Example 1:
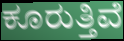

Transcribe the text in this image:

ಕೂರುತ್ತಿವೆ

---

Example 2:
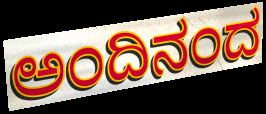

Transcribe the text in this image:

ಅಂದಿನಂದ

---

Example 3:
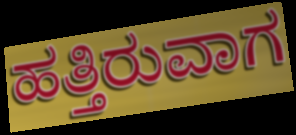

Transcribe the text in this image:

ಹತ್ತಿರುವಾಗ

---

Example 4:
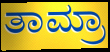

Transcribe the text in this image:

ತಾಮ್ರಾ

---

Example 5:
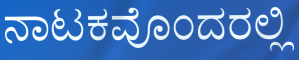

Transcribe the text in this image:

ನಾಟಕವೊಂದರಲ್ಲಿ